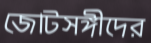
জোটসঙ্গীদের